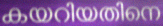
കയറിയതിനെ